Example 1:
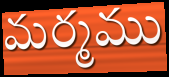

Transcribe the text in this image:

మర్మము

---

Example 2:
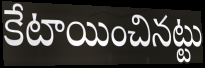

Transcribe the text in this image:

కేటాయించినట్టు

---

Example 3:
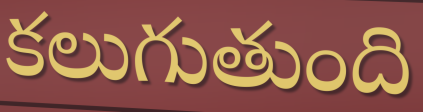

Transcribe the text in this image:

కలుగుతుంది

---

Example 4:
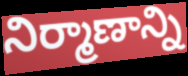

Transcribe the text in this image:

నిర్మాణాన్ని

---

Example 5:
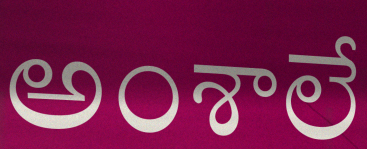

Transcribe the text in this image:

అంశాలే